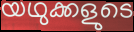
യഥുക്കളുടെ